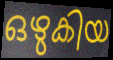
ഒഴുകിയ